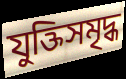
যুক্তিসমৃদ্ধ